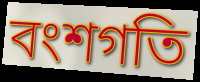
বংশগতি